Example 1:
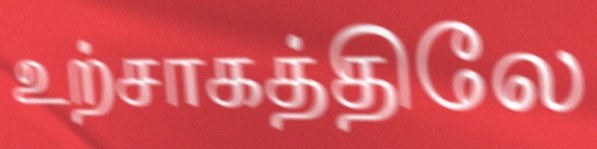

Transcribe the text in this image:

உற்சாகத்திலே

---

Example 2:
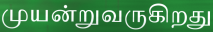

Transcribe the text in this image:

முயன்றுவருகிறது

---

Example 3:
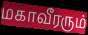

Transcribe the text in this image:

மகாவீரரும்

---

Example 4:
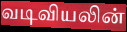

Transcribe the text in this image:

வடிவியலின்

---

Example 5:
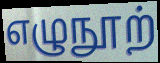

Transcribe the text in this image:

எழுநூற்